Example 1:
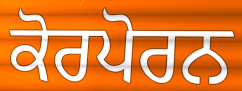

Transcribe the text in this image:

ਕੋਰਪੋਰਨ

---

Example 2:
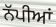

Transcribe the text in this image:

ਨੱਪੀਆਂ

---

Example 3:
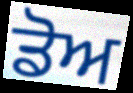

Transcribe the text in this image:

ਡੋਅ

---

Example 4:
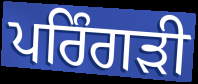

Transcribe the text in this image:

ਪਰਿੰਗੜੀ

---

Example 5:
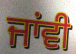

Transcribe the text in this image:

ਜਾਂਵੀ